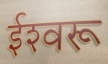
ईश्वरू